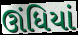
ઊંધિયાં